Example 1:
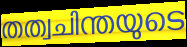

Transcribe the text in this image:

തത്വചിന്തയുടെ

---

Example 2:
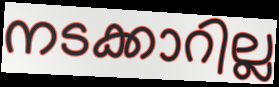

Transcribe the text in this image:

നടക്കാറില്ല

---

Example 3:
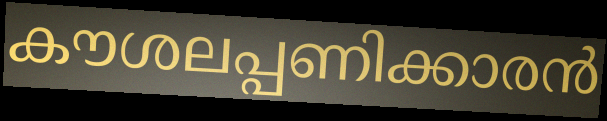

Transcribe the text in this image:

കൗശലപ്പണിക്കാരൻ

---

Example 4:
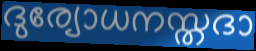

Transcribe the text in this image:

ദുര്യോധനസ്തദാ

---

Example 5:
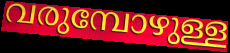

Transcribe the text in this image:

വരുമ്പോഴുള്ള